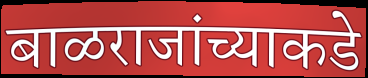
बाळराजांच्याकडे